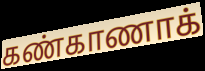
கண்காணாக்